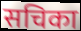
सचिका